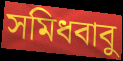
সমিধবাবু